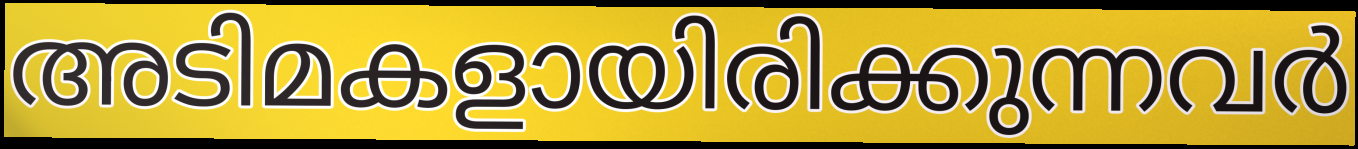
അടിമകളായിരിക്കുന്നവർ